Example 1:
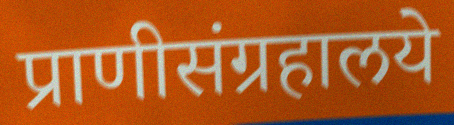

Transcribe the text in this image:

प्राणीसंग्रहालये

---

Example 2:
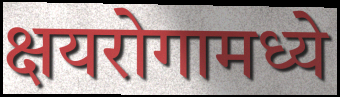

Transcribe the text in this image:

क्षयरोगामध्ये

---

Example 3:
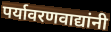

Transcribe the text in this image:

पर्यावरणवाद्यांनी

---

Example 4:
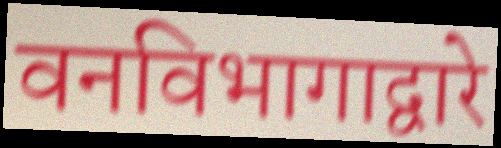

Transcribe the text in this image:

वनविभागाद्वारे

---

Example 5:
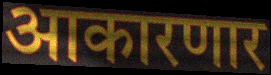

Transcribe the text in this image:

आकारणार